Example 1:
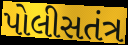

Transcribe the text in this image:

પોલીસતંત્ર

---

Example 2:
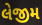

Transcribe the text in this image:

લેજીમ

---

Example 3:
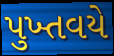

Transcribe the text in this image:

પુખ્તવયે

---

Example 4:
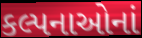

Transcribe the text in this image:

કલ્પનાઓનાં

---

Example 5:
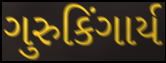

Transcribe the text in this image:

ગુરુકિંગાર્ય